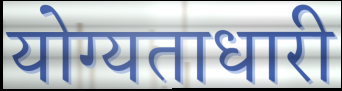
योग्यताधारी